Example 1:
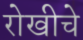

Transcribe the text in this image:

रोखीचे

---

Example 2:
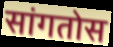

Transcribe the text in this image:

सांगतोस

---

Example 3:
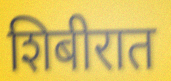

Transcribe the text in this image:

शिबीरात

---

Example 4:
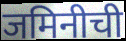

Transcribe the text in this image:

जमिनीची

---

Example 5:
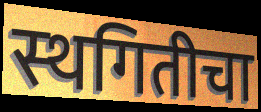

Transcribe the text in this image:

स्थगितीचा